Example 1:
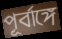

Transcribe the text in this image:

পূর্বাঙ্গে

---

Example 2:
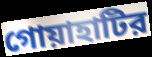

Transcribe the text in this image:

গোয়াহাটির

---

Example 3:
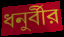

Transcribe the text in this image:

ধনুর্বীর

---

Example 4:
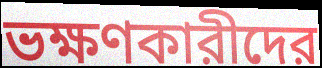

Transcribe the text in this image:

ভক্ষণকারীদের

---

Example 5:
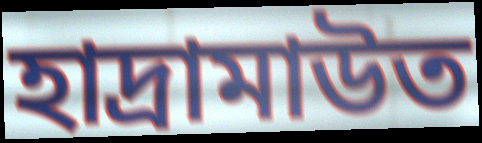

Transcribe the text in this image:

হাদ্রামাউত